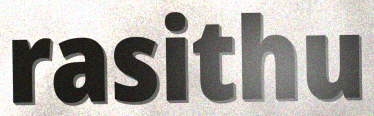
rasithu